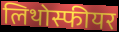
लिथोस्फीयर